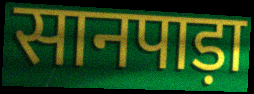
सानपाड़ा